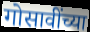
गोसावींच्या